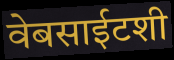
वेबसाईटशी